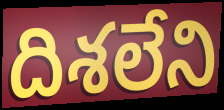
దిశలేని